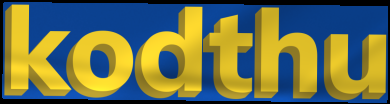
kodthu